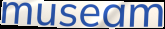
museam